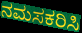
ನಮಸಕರಿಸಿ